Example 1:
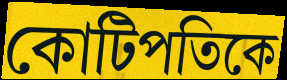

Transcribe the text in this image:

কোটিপতিকে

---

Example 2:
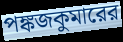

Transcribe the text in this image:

পঙ্কজকুমারের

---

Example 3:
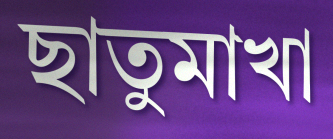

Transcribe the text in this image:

ছাতুমাখা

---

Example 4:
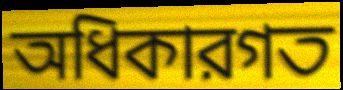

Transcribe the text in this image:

অধিকারগত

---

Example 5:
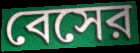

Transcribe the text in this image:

বেসের